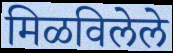
मिळविलेले